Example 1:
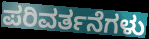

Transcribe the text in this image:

ಪರಿವರ್ತನೆಗಳು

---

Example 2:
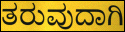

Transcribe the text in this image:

ತರುವುದಾಗಿ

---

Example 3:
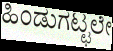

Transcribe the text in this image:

ಹಿಂಡುಗಟ್ಟಲೇ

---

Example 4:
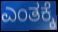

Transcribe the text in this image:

ಎಂತಕ್ಕೆ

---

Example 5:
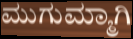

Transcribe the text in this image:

ಮುಗುಮ್ಮಾಗಿ